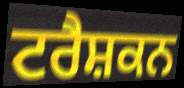
ਟਰੈਸ਼ਕਨ